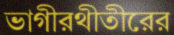
ভাগীরথীতীরের